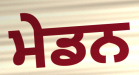
ਮੇਡਨ